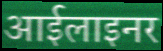
आईलाइनर